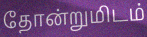
தோன்றுமிடம்